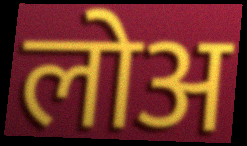
लोअ